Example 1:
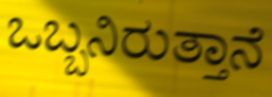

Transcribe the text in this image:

ಒಬ್ಬನಿರುತ್ತಾನೆ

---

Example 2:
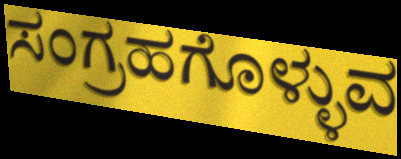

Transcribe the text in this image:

ಸಂಗ್ರಹಗೊಳ್ಳುವ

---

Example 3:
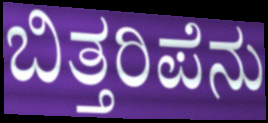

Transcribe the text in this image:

ಬಿತ್ತರಿಪೆನು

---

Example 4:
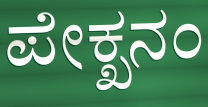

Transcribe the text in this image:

ಪೇಕ್ಖನಂ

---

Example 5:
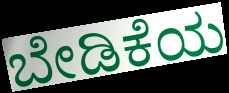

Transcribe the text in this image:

ಬೇಡಿಕೆಯ